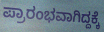
ಪ್ರಾರಂಭವಾಗಿದ್ದಕ್ಕೆ